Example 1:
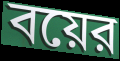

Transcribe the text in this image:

বয়ের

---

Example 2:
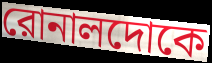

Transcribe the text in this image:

রোনালদোকে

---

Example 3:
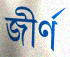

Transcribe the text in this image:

জীর্ণ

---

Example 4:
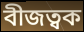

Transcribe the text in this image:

বীজত্বক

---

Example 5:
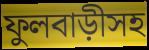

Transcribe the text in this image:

ফুলবাড়ীসহ